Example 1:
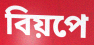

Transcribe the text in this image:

বিয়পে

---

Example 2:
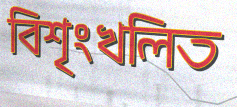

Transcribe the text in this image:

বিশৃংখলিত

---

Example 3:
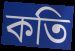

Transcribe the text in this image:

কতি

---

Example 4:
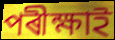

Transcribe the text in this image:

পৰীক্ষাই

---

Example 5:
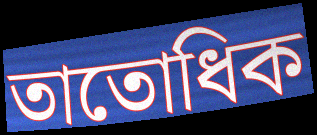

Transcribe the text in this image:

তাতোধিক